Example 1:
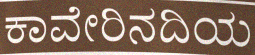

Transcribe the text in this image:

ಕಾವೇರಿನದಿಯ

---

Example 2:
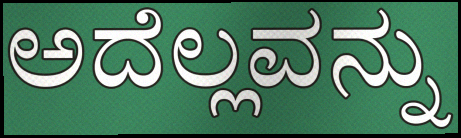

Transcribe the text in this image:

ಅದೆಲ್ಲವನ್ನು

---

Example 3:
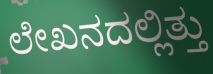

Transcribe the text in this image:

ಲೇಖನದಲ್ಲಿತ್ತು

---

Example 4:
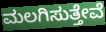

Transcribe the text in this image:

ಮಲಗಿಸುತ್ತೇವೆ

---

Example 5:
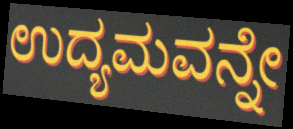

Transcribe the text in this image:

ಉದ್ಯಮವನ್ನೇ